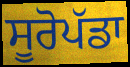
ਸੂਰੋਪੱਡਾ